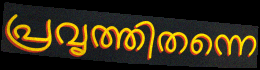
പ്രവൃത്തിതന്നെ